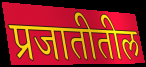
प्रजातीतील